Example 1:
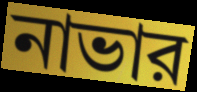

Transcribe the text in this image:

নাভার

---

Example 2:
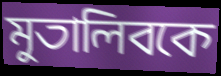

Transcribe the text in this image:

মুতালিবকে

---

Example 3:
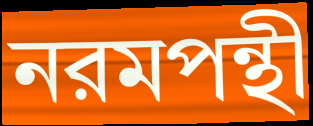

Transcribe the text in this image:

নরমপন্থী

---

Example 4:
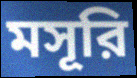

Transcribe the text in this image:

মসূরি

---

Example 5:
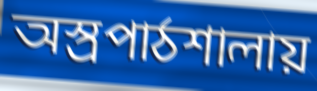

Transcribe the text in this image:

অস্ত্রপাঠশালায়